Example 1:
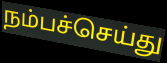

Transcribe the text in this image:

நம்பச்செய்து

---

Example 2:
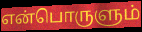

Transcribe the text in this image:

என்பொருளும்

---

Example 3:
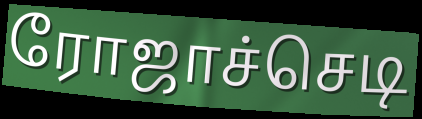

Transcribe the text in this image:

ரோஜாச்செடி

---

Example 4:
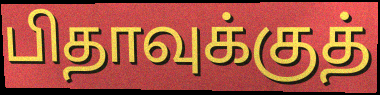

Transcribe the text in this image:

பிதாவுக்குத்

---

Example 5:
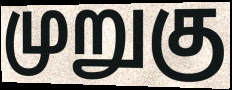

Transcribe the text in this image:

முறுகு